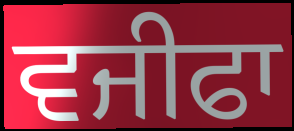
ਵਜੀਫਾ